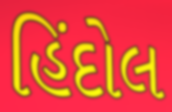
હિંદોલ